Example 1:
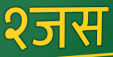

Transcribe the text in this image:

श्जस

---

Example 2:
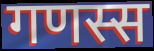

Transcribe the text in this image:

गणस्स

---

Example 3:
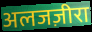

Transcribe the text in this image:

अलजज़ीरा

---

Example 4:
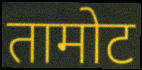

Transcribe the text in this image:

तामोट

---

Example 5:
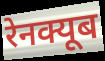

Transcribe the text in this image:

रेनक्यूब